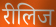
रीलिज